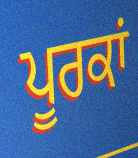
ਪੂਰਕਾਂ